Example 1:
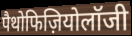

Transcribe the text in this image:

पैथोफिज़ियोलॉजी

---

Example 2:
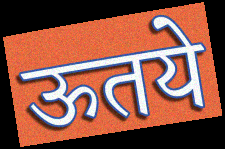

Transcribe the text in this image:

ऊतये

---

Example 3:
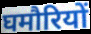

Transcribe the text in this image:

घमौरियों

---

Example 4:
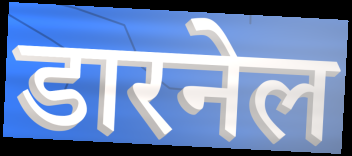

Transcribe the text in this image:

डारनेल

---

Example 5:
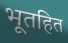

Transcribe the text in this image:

भूतहित